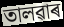
তালৱাৰ